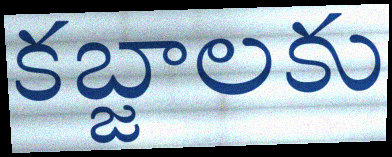
కబ్జాలకు